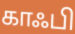
காஃபி